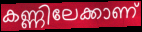
കണ്ണിലേക്കാണ്